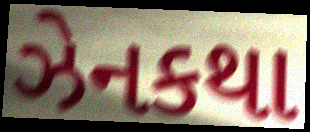
ઝેનકથા